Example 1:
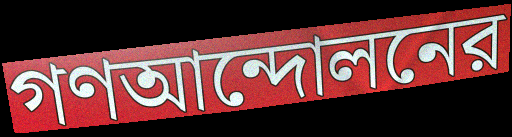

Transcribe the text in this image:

গণআন্দোলনের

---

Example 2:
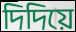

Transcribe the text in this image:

দিদিয়ে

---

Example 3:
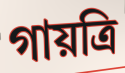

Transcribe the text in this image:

গায়ত্রি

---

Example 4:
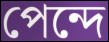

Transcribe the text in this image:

পেন্দে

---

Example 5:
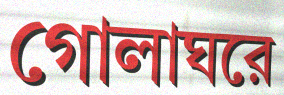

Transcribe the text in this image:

গোলাঘরে